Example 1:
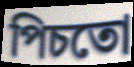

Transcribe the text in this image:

পিচতো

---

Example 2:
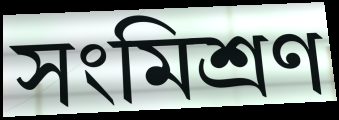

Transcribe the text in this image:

সংমিশ্ৰণ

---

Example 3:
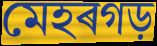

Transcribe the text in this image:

মেহৰগড়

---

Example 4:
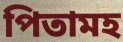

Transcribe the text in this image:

পিতামহ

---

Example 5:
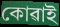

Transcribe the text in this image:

কোৱাই